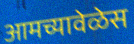
आमच्यावेळेस